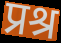
प्रश्र